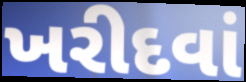
ખરીદવાં